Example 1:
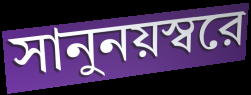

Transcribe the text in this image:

সানুনয়স্বরে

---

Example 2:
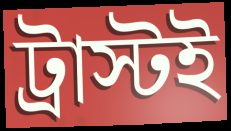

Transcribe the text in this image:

ট্রাস্টই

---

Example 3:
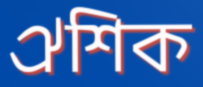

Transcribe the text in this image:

ঐশিক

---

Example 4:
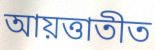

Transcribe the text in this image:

আয়ত্তাতীত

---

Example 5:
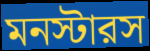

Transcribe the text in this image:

মনস্টারস